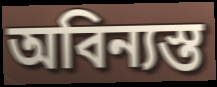
অবিন্যস্ত